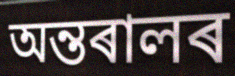
অন্তৰালৰ